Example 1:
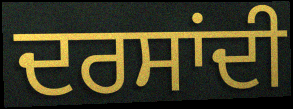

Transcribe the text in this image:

ਦਰਸਾਂਦੀ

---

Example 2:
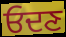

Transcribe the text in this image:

ਓਦਣ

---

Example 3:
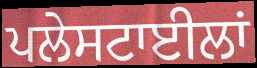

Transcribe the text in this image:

ਪਲੇਸਟਾਈਲਾਂ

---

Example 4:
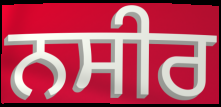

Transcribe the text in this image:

ਨਸੀਰ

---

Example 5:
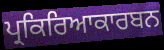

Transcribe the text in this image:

ਪ੍ਰਕਿਰਿਆਕਾਰਬਨ